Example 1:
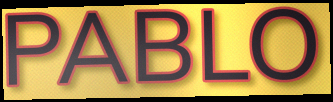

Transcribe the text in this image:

PABLO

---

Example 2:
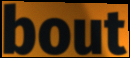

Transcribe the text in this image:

bout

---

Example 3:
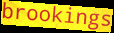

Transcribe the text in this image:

brookings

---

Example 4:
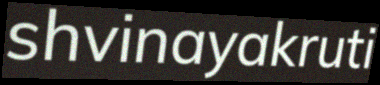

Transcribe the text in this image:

shvinayakruti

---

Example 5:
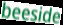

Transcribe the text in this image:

beeside